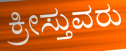
ಕ್ರೀಸ್ತುವರು